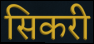
सिकरी